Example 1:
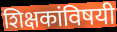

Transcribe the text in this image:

शिक्षकांविषयी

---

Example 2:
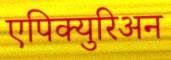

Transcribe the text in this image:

एपिक्युरिअन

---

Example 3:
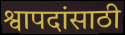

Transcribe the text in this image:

श्वापदांसाठी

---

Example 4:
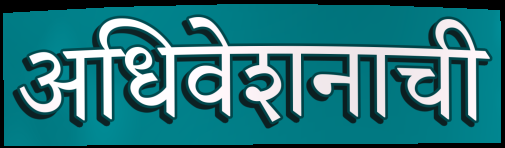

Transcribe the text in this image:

अधिवेशनाची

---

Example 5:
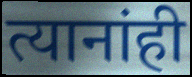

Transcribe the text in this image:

त्यानांही